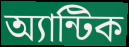
অ্যান্টিক